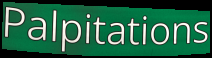
Palpitations